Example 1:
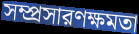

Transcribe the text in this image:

সম্প্রসারণক্ষমতা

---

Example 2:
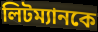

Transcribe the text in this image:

লিটম্যানকে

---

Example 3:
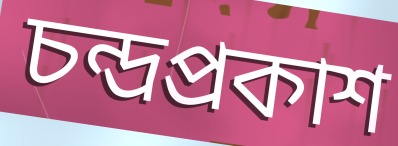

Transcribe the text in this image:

চন্দ্রপ্রকাশ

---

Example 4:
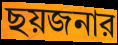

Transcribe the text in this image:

ছয়জনার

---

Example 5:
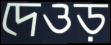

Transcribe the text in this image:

দেওড়